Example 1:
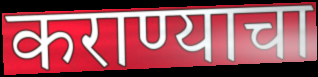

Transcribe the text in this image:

कराण्याचा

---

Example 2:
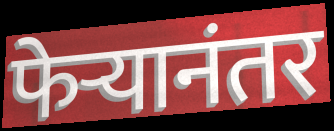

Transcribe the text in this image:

फेऱ्यानंतर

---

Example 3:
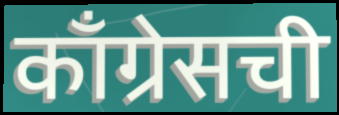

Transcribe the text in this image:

काँग्रेसची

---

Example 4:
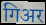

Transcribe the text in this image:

गिअर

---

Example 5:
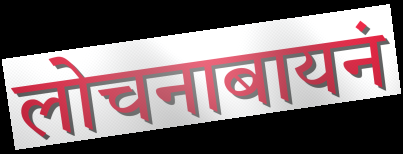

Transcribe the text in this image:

लोचनाबायनं